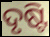
ଦୃଷ୍ଟି